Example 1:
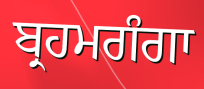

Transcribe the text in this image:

ਬ੍ਰਹਮਗੰਗਾ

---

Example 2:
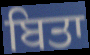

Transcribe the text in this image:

ਬਿਤਾ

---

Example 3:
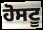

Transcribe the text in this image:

ਹੋਸਟੂ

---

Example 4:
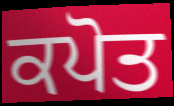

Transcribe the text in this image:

ਕਪੋਤ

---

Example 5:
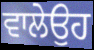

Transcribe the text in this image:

ਵਾਲੇਉਹ